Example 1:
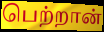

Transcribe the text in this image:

பெற்றான்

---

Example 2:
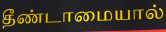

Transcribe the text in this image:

தீண்டாமையால்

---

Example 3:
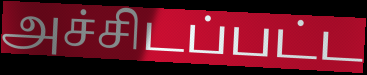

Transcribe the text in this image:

அச்சிடப்பட்ட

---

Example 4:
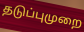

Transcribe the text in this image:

தடுப்புமுறை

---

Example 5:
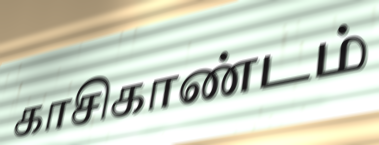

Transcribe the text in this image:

காசிகாண்டம்